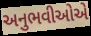
અનુભવીઓએ